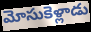
మోసుకెళ్లాడు